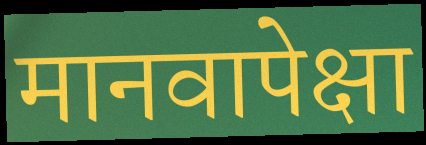
मानवापेक्षा